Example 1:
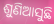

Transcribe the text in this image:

ଶୁଣିଆସୁଛି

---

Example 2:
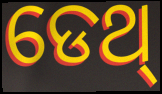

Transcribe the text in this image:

ଡେଥ୍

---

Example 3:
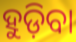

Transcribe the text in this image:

ହୁଡ଼ିବା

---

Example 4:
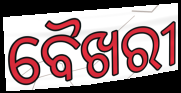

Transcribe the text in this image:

ବୈଖରୀ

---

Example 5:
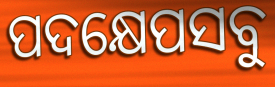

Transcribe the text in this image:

ପଦକ୍ଷେପସବୁ